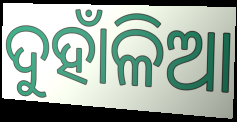
ଦୁହାଁଳିଆ